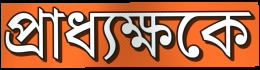
প্রাধ্যক্ষকে